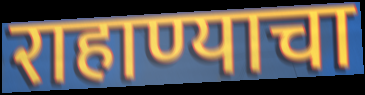
राहाण्याचा